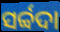
ସର୍ବ୍ବଦା